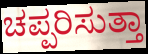
ಚಪ್ಪರಿಸುತ್ತಾ